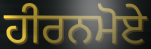
ਹੀਰਨਮੋਏ